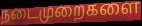
நடைமுறைகளை